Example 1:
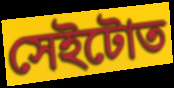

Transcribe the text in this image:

সেইটোত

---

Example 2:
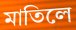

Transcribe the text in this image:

মাতিলে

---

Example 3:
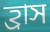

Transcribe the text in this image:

হ্ৰাস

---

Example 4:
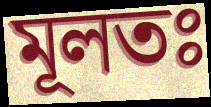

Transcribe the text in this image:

মূলতঃ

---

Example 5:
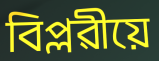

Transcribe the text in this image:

বিপ্লৱীয়ে